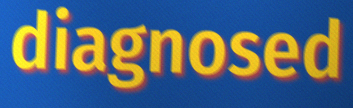
diagnosed